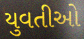
યુવતીઓ